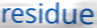
residue